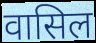
वासिल